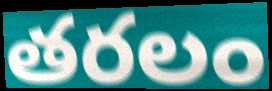
తరలం